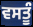
ਵਸਤੂੰ